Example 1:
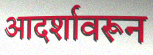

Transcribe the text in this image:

आदर्शावरून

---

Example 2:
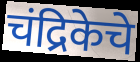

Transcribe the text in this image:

चंद्रिकेचे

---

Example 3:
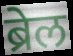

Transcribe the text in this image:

ब्रेल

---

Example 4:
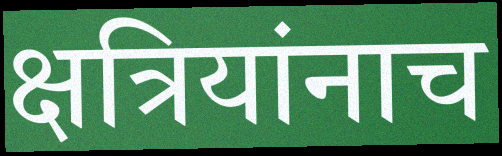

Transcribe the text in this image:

क्षत्रियांनाच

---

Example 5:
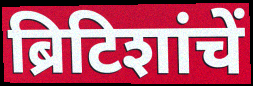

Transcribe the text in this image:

ब्रिटिशांचें